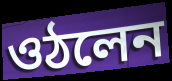
ওঠলেন